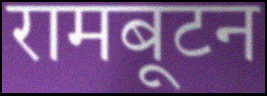
रामबूटन